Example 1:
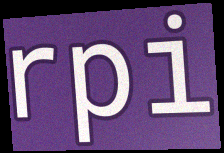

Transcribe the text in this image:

rpi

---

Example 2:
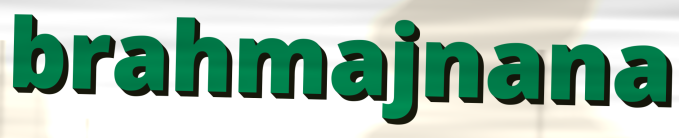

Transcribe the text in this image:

brahmajnana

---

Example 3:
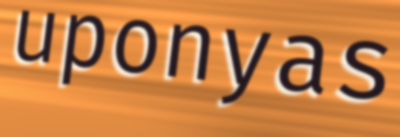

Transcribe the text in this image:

uponyas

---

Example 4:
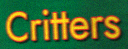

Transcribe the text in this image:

Critters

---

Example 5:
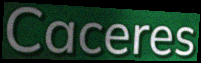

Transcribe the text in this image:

Caceres